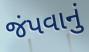
જંપવાનું